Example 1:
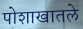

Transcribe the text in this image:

पोशाखातले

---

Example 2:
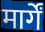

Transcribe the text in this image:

मार्गें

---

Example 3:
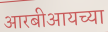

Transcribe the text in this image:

आरबीआयच्या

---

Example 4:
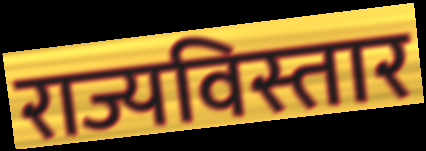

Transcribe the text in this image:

राज्यविस्तार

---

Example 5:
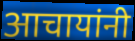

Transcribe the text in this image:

आचायांनी